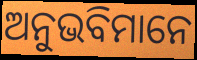
ଅନୁଭବିମାନେ